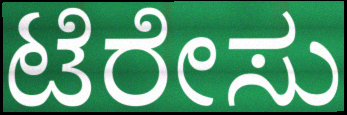
ಟೆರೇಸು